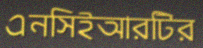
এনসিইআরটির